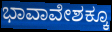
ಭಾವಾವೇಶಕ್ಕೂ